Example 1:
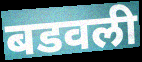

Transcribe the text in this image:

बडवली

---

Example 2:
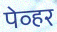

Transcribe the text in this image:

पेव्हर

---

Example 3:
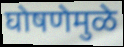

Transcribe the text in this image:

घोषणेमुळे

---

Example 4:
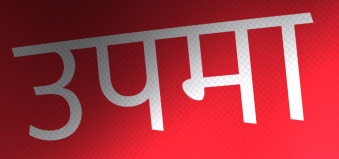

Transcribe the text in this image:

उपमा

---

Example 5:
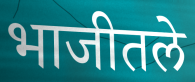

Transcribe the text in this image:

भाजीतले